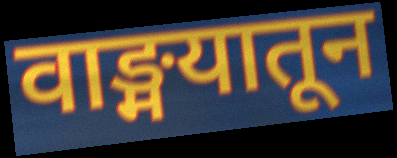
वाङ्मयातून